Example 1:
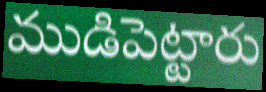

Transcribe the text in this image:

ముడిపెట్టారు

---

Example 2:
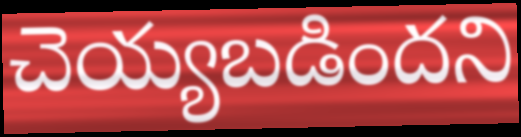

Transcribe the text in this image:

చెయ్యబడిందని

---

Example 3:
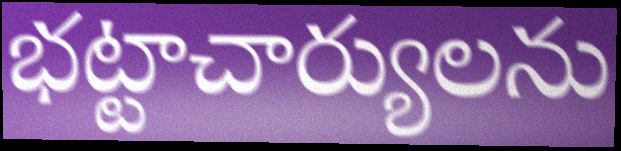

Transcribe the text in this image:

భట్టాచార్యులను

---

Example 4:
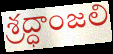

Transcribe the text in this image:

శ్రద్ధాంజలి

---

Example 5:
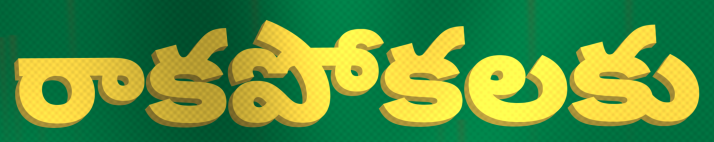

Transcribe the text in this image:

రాకపోకలకు